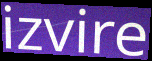
izvire